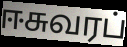
ஈசுவரப்